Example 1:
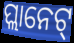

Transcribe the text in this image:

ପ୍ଲାନେଟ୍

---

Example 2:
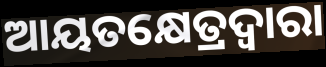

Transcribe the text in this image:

ଆୟତକ୍ଷେତ୍ରଦ୍ଵାରା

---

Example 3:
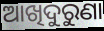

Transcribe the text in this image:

ଆଖିଦୁରୁଣା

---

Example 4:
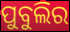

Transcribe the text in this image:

ପୁବୁଲିର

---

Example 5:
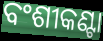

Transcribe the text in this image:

ବଂଶୀକଣ୍ଟା